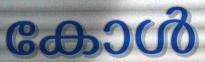
കോൾ